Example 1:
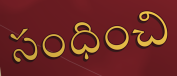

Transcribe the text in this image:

సంధించి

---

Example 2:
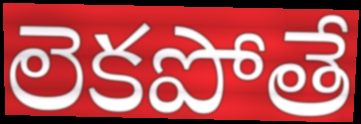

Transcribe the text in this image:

లెకపోతే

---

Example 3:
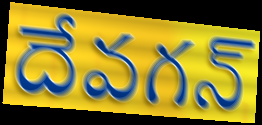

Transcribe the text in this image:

దేవగన్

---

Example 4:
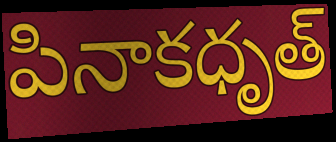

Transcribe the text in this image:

పినాకధృత్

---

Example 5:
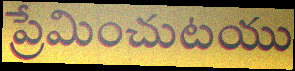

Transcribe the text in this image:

ప్రేమించుటయు